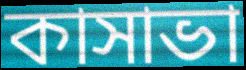
কাসাভা